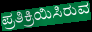
ಪ್ರತಿಕ್ರಿಯಿಸಿರುವ